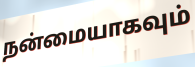
நன்மையாகவும்